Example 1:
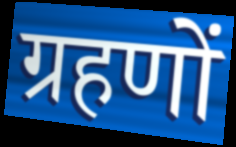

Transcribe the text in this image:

ग्रहणों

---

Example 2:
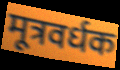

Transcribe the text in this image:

मूत्रवर्धक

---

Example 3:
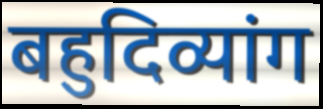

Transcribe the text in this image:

बहुदिव्यांग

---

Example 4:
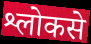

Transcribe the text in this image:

श्लोकसे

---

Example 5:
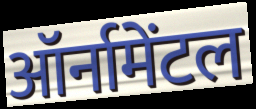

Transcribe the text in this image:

ऑर्नामेंटल